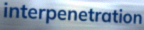
interpenetration